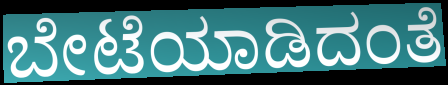
ಬೇಟೆಯಾಡಿದಂತೆ